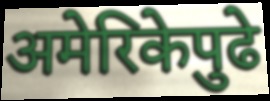
अमेरिकेपुढे